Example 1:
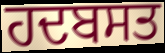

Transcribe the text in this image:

ਹਦਬਸਤ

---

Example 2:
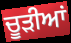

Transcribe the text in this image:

ਚੂੜੀਆਂ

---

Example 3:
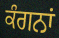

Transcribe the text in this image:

ਕੰਗਨਾਂ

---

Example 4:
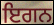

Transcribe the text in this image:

ਇਗਨ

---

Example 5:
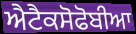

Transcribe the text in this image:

ਐਟੈਕਸੋਫੋਬੀਆ